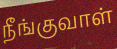
நீங்குவாள்